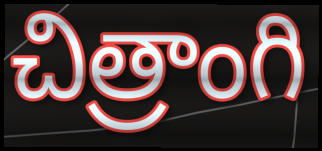
చిత్రాంగి